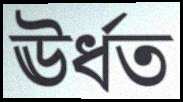
ঊৰ্ধত